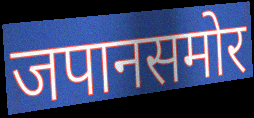
जपानसमोर